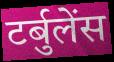
टर्बुलेंस